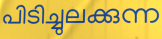
പിടിച്ചുലക്കുന്ന